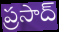
ప్రసాద్